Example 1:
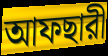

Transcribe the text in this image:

আফছারী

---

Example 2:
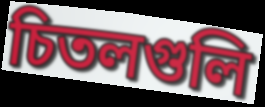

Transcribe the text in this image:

চিতলগুলি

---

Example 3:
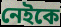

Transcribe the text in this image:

নেইকে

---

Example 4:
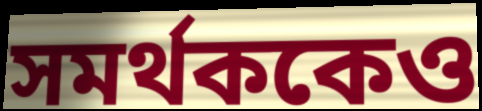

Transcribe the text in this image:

সমর্থককেও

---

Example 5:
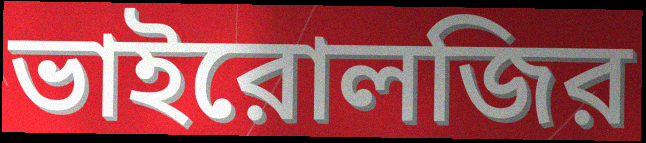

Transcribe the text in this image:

ভাইরোলজির